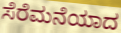
ಸೆರೆಮನೆಯಾದ